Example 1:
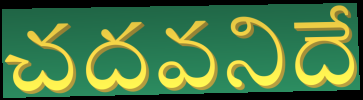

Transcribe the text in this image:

చదవనిదే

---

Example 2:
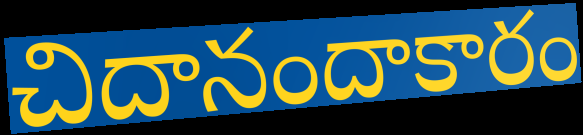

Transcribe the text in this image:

చిదానందాకారం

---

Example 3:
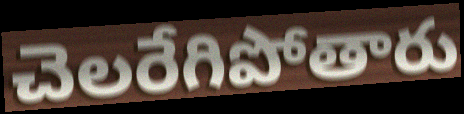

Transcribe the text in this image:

చెలరేగిపోతారు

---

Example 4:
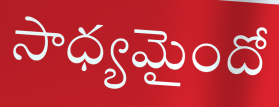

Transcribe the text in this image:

సాధ్యమైందో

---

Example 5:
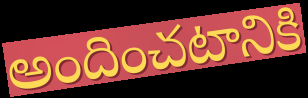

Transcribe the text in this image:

అందించటానికి